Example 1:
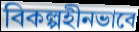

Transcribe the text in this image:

বিকল্পহীনভাবে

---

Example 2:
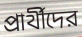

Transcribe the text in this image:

প্রার্থীদের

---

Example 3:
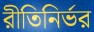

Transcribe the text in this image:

রীতিনির্ভর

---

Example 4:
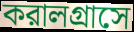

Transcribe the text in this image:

করালগ্রাসে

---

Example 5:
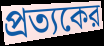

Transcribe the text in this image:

প্রত্যকের